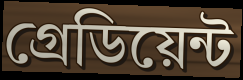
গ্রেডিয়েন্ট